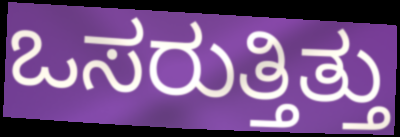
ಒಸರುತ್ತಿತ್ತು